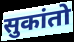
सुकांतो